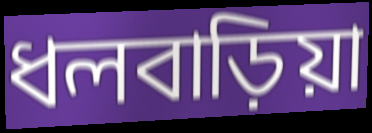
ধলবাড়িয়া